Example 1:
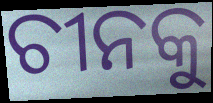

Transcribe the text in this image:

ଚୀନକୁ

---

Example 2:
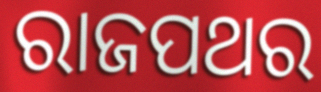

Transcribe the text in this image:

ରାଜପଥର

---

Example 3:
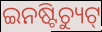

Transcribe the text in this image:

ଇନଷ୍ଟିଚ୍ୟୁଟ୍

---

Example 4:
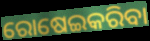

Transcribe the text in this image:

ରୋଷେଇକରିବା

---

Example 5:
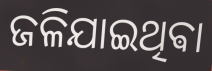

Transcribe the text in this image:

ଜଳିଯାଇଥିଵା